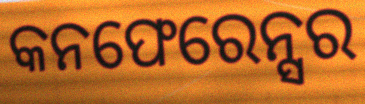
କନଫେରେନ୍ସର